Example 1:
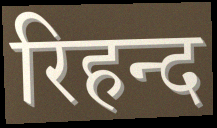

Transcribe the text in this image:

रिहन्द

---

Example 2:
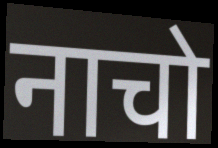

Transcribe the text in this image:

नाचो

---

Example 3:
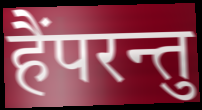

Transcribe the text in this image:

हैंपरन्तु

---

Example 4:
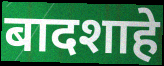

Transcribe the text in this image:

बादशाहे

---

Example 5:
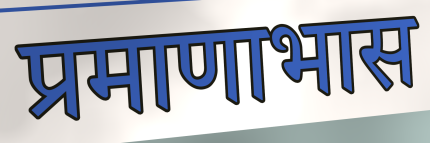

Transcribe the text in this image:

प्रमाणाभास